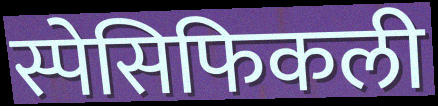
स्पेसिफिकली